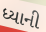
ધ્યાની